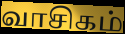
வாசிகம்